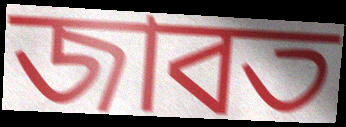
জাবত